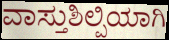
ವಾಸ್ತುಶಿಲ್ಪಿಯಾಗಿ